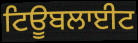
ਟਿਊਬਲਾਈਟ